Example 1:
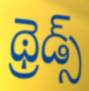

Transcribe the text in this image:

థ్రెడ్స్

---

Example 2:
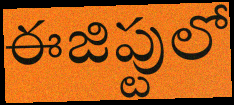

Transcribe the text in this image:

ఈజిప్టులో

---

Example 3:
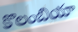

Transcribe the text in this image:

కొలంబియా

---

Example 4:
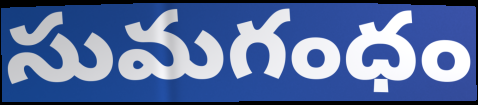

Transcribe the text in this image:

సుమగంధం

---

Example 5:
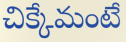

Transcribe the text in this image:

చిక్కేమంటే